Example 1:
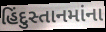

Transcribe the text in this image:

હિંદુસ્તાનમાંના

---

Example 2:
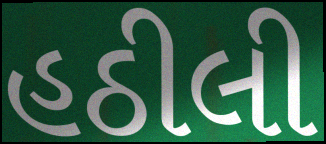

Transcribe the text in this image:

હઠીલી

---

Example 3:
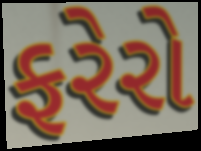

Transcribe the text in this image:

ફરેરો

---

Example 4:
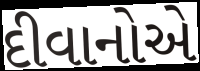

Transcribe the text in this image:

દીવાનોએ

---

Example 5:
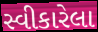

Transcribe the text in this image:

સ્વીકારેલા